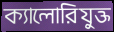
ক্যালোরিযুক্ত